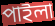
পাইলা